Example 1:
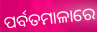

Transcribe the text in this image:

ପର୍ବତମାଳାରେ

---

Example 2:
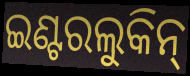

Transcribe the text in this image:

ଇଣ୍ଟରଲୁକିନ୍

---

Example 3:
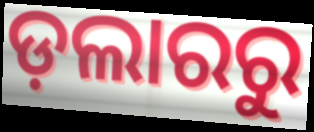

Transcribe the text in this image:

ଡ଼ଲାରରୁ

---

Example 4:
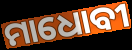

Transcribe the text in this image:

ମାଧୋବୀ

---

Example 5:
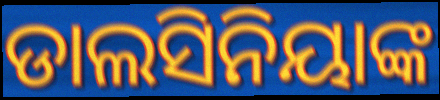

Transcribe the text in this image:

ଡାଲସିନିୟାଙ୍କ